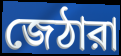
জেঠারা